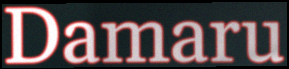
Damaru